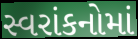
સ્વરાંકનોમાં